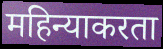
महिन्याकरता